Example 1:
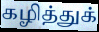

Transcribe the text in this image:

கழித்துக்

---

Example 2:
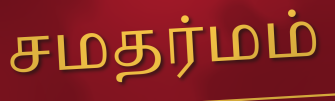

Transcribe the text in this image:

சமதர்மம்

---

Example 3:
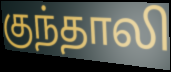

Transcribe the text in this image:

குந்தாலி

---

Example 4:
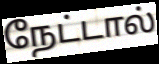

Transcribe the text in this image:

நேட்டால்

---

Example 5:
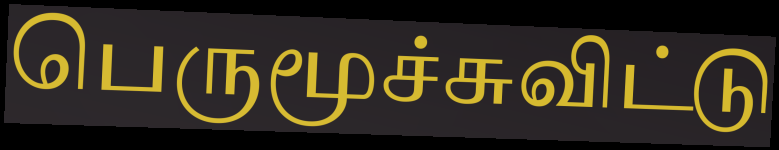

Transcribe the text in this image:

பெருமூச்சுவிட்டு